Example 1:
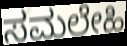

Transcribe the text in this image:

ಸಮಲೇಹಿ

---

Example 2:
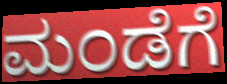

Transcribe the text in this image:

ಮಂಡೆಗೆ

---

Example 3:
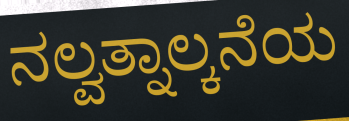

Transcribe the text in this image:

ನಲ್ವತ್ನಾಲ್ಕನೆಯ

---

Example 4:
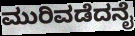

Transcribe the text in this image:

ಮುರಿವಡೆದನೈ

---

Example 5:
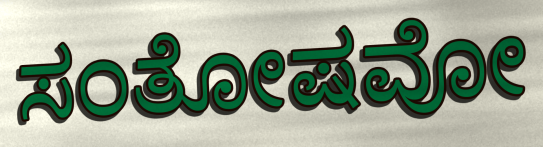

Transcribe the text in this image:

ಸಂತೋಷವೋ